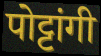
पोट्टांगी